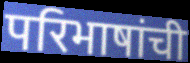
परिभाषांची